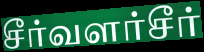
சீர்வளர்சீர்